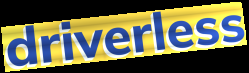
driverless